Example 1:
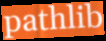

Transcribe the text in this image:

pathlib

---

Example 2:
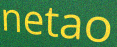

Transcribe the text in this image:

netao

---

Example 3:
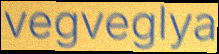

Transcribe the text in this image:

vegveglya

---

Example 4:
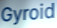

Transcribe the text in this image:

Gyroid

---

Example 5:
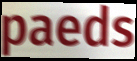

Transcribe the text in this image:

paeds